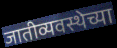
जातीव्यवस्थेच्या